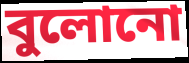
বুলোনো